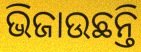
ଭିଜାଉଛନ୍ତି